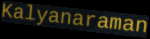
Kalyanaraman